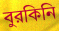
বুরকিনি